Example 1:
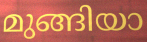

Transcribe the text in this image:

മുങ്ങിയാ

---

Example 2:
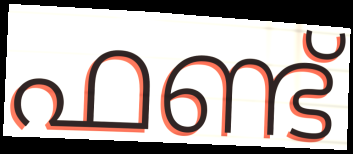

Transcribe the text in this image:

ഫണ്ട്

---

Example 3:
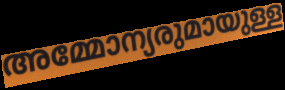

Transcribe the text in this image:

അമ്മോന്യരുമായുള്ള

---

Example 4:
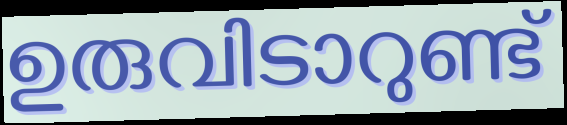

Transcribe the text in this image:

ഉരുവിടാറുണ്ട്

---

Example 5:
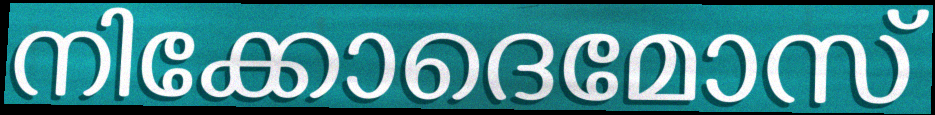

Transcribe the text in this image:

നിക്കോദെമോസ്